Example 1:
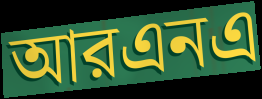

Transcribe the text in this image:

আরএনএ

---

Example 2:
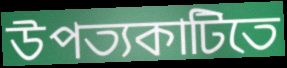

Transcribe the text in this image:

উপত্যকাটিতে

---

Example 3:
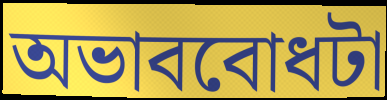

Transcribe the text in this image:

অভাববোধটা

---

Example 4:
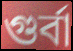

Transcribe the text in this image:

গুর্বা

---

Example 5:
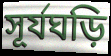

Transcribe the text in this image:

সূর্যঘড়ি